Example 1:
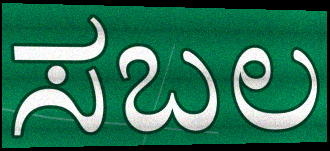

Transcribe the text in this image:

ಸಬಲ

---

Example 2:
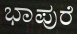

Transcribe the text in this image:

ಭಾಪುರೆ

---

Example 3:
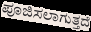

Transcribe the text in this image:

ಪೂಜಿಸಲಾಗುತ್ತದೆ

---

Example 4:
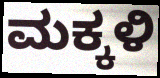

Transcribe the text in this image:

ಮಕ್ಕಳಿ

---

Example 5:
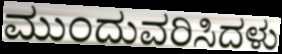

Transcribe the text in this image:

ಮುಂದುವರಿಸಿದಳು